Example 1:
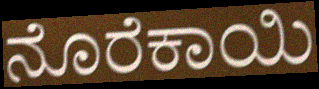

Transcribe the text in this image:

ನೊರೆಕಾಯಿ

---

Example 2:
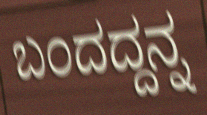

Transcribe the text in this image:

ಬಂದದ್ದನ್ನ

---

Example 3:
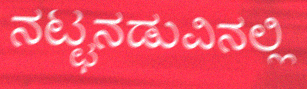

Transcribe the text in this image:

ನಟ್ಟನಡುವಿನಲ್ಲಿ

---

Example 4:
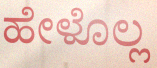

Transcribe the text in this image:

ಹೇಳೊಲ್ಲ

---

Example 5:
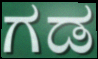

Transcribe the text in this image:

ಗಡ